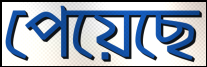
পেয়েছে